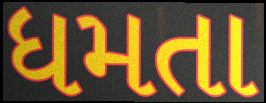
ધમતા